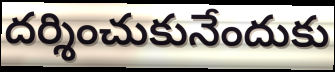
దర్శించుకునేందుకు